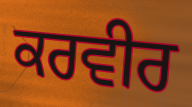
ਕਰਵੀਰ